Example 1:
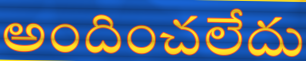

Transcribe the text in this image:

అందించలేదు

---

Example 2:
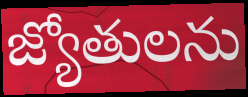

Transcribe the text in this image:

జ్యోతులను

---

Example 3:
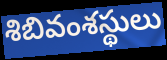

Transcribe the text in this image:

శిబివంశస్థులు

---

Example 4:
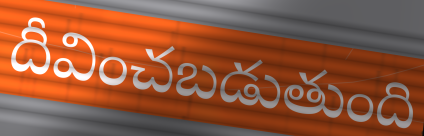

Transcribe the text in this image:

దీవించబడుతుంది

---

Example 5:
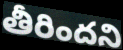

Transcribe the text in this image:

తీరిందని